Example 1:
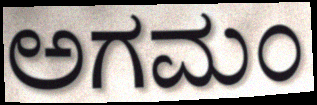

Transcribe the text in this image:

ಅಗಮಂ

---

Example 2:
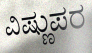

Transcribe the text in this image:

ವಿಷ್ಣುಪರ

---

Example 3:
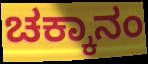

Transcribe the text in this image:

ಚಕ್ಕಾನಂ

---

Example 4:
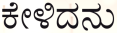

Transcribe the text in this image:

ಕೇಳಿದನು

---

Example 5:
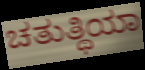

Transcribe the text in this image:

ಚತುತ್ಥಿಯಾ